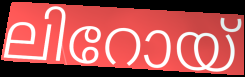
ലിറോയ്